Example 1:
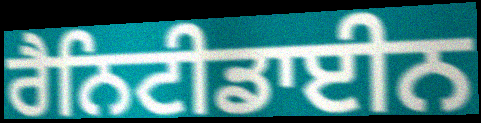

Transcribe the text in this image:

ਰੈਨਿਟੀਡਾਈਨ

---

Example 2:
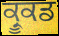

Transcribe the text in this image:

ਕ੍ਰੂਕਡ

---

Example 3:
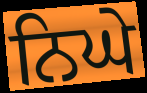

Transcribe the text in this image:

ਨਿਘੇ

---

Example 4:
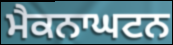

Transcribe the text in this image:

ਮੈਕਨਾਘਟਨ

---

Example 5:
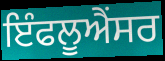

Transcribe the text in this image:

ਇੰਫਲੂਐਂਸਰ